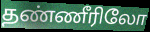
தண்ணீரிலோ